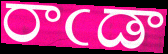
రాఁడా